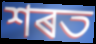
শৰত